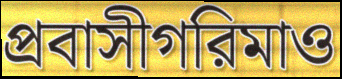
প্রবাসীগরিমাও